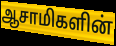
ஆசாமிகளின்